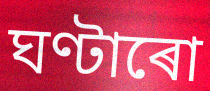
ঘণ্টাৰো